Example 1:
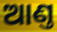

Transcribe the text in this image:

ଆଣ୍ତ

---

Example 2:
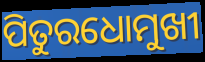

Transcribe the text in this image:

ପିତୁରଧୋମୁଖୀ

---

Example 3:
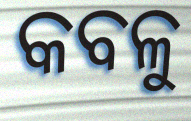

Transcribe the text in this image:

କବଳୁ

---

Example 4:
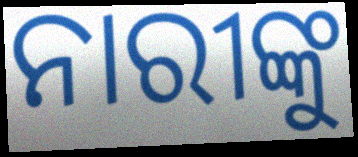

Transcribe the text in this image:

ନାରୀଙ୍କୁ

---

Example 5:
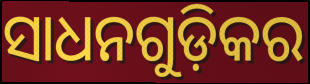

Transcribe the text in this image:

ସାଧନଗୁଡ଼ିକର